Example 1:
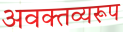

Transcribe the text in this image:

अवक्तव्यरूप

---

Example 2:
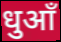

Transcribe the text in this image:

धुआँ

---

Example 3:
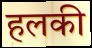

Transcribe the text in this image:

हलकी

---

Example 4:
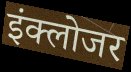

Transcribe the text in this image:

इंक्लोजर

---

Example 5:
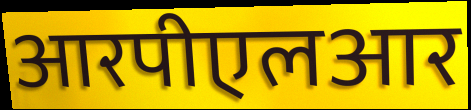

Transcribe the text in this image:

आरपीएलआर